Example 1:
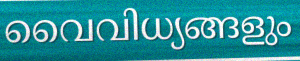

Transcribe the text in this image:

വൈവിധ്യങ്ങളും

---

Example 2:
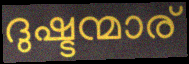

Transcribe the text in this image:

ദുഷ്ടന്മാര്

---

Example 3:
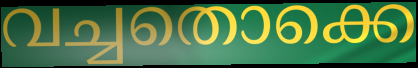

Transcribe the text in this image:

വച്ചതൊക്കെ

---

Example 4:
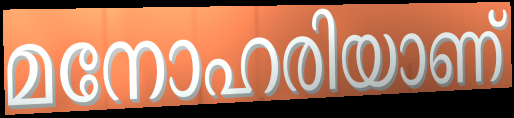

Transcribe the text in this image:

മനോഹരിയാണ്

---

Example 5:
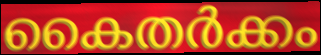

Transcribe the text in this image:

കൈതർക്കം